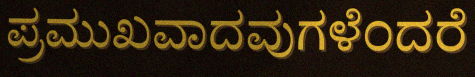
ಪ್ರಮುಖವಾದವುಗಳೆಂದರೆ